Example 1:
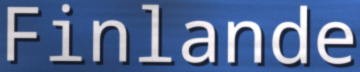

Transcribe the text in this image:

Finlande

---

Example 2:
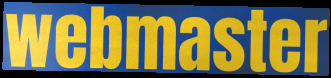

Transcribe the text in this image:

webmaster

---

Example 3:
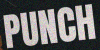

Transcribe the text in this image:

PUNCH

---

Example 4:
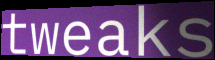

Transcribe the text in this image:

tweaks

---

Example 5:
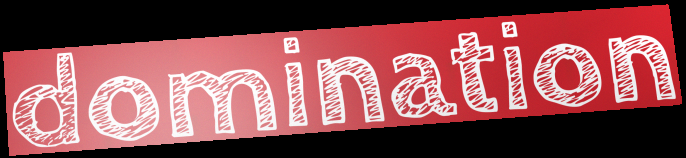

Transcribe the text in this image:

domination